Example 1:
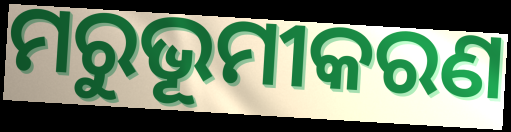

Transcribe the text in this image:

ମରୁଭୂମୀକରଣ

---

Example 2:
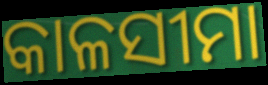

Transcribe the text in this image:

କାଳସୀମା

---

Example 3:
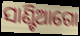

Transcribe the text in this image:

ସାଣ୍ଟିଆଗୋ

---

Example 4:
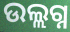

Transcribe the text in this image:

ଉଲ୍ଲଗ୍ନ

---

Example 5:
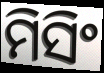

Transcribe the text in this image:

ମିସିଂ